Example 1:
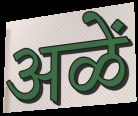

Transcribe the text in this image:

अळें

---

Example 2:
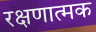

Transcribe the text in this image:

रक्षणात्मक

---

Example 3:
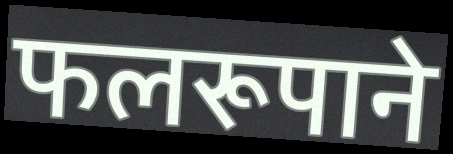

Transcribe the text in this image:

फलरूपाने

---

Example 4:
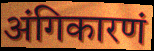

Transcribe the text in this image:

अंगिकारणं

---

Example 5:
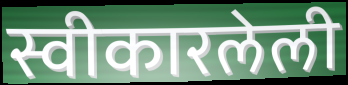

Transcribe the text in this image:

स्वीकारलेली